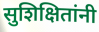
सुशिक्षितांनी